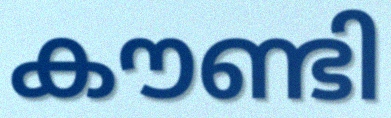
കൗണ്ടി